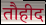
तौहीद